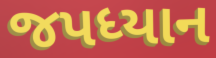
જપધ્યાન